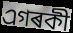
এগৰকী